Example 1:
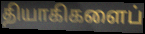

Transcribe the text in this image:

தியாகிகளைப்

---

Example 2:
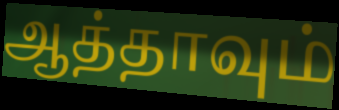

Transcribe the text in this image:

ஆத்தாவும்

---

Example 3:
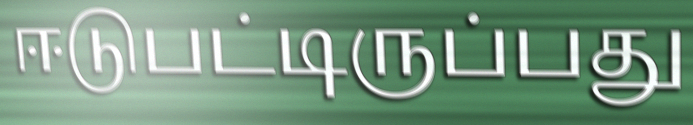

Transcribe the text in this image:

ஈடுபட்டிருப்பது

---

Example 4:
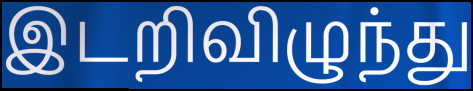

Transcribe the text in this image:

இடறிவிழுந்து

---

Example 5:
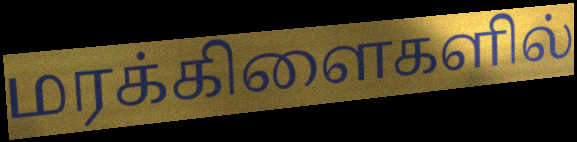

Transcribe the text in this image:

மரக்கிளைகளில்